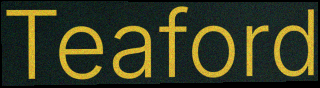
Teaford